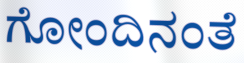
ಗೋಂದಿನಂತೆ